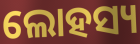
ଲୋହସ୍ୟ